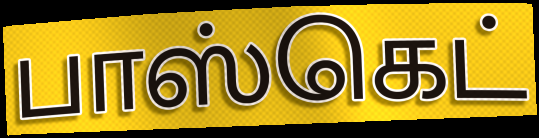
பாஸ்கெட்